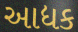
આદ્યક